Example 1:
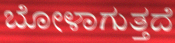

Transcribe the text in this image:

ಬೋಳಾಗುತ್ತದೆ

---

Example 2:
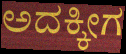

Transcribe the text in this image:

ಅದಕ್ಕೀಗ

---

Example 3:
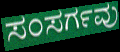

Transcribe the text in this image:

ಸಂಸರ್ಗವು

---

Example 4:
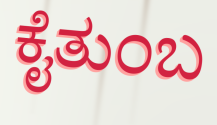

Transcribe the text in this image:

ಕೈತುಂಬ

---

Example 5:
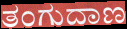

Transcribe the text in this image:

ತಂಗುದಾಣ